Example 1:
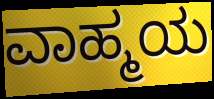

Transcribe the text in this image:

ವಾಹ್ಮಯ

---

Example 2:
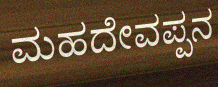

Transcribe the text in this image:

ಮಹದೇವಪ್ಪನ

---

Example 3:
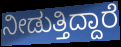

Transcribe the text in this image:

ನೀಡುತ್ತಿದ್ದಾರೆ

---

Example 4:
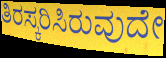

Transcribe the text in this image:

ತಿರಸ್ಕರಿಸಿರುವುದೇ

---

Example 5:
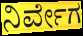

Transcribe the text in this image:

ನಿರ್ವೇಗ